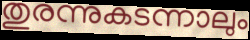
തുരന്നുകടന്നാലും